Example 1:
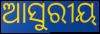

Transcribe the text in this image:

ଆସୁରୀୟ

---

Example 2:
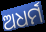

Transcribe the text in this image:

ଅଧର୍ମ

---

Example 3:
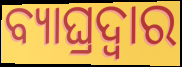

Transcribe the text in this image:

ବ୍ୟାଘ୍ରଦ୍ଵାର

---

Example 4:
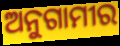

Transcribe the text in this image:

ଅନୁଗାମୀର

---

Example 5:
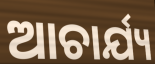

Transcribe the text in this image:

ଆଚାର୍ଯ୍ୟ